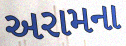
અરામના